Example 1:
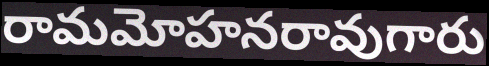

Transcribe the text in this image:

రామమోహనరావుగారు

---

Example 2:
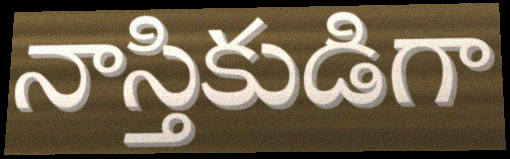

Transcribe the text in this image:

నాస్తికుడిగా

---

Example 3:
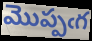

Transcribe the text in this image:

మొప్పఁగ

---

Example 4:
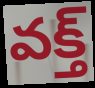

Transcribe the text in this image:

వక్త్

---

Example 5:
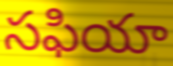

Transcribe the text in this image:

సఫియా